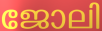
ജോലി